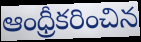
ఆంధ్రీకరించిన